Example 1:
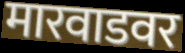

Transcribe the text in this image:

मारवाडवर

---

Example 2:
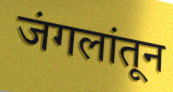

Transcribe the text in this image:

जंगलांतून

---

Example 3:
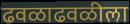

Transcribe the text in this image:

ढवळाढवळीला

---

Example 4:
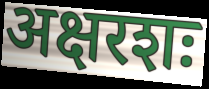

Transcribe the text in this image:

अक्षरशः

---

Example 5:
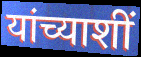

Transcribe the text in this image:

यांच्याशीं